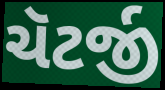
ચૅટર્જી